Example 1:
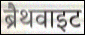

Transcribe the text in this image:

ब्रैथवाइट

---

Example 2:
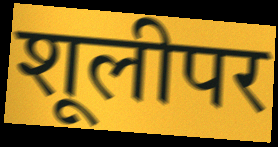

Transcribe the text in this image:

शूलीपर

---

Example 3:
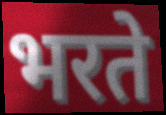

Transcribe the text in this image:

भरते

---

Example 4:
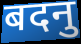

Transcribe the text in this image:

बदनु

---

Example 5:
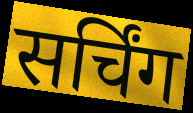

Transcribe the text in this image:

सर्चिंग